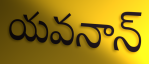
యవనాన్